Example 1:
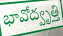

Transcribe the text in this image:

భావోద్వృత్తి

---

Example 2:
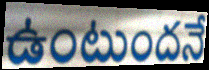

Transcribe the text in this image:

ఉంటుందనే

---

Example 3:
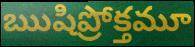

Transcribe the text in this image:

ఋషిప్రోక్తమూ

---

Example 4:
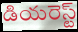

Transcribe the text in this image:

డియరెస్ట్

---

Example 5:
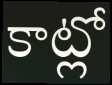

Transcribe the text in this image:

కాట్లో